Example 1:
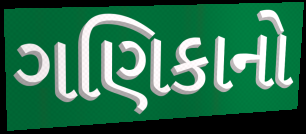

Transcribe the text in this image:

ગણિકાનો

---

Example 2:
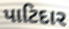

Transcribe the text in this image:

પાટિદાર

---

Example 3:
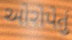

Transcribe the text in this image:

ઓરોપેતું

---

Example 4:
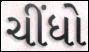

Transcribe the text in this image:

ચીંધો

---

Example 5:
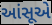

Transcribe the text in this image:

આંસૂએ